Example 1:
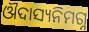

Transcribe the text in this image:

ଔଦାସ୍ୟନିମଗ୍ନ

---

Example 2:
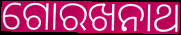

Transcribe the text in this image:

ଗୋରଖନାଥ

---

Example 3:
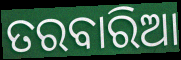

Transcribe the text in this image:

ତରବାରିଆ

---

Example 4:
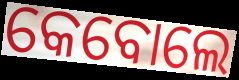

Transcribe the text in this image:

କେବୋଲେ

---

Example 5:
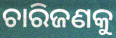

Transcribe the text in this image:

ଚାରିଜଣକୁ